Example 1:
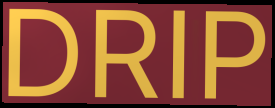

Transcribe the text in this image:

DRIP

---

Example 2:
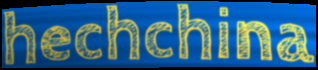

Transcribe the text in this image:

hechchina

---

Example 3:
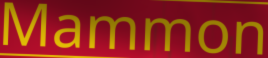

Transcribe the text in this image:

Mammon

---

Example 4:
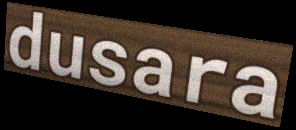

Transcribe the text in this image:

dusara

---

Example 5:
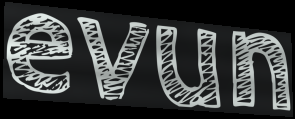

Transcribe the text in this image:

evun